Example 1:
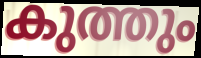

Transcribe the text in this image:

കുത്തും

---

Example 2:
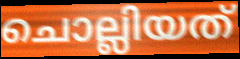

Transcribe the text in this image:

ചൊല്ലിയത്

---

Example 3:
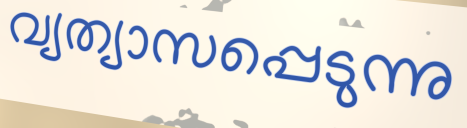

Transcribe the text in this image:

വ്യത്യാസപ്പെടുന്നു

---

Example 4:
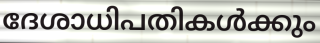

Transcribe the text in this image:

ദേശാധിപതികൾക്കും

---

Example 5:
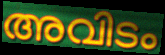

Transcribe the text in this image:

അവിടം